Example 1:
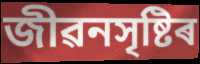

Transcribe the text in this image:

জীৱনসৃষ্টিৰ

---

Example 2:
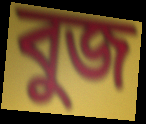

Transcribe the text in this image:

বুজ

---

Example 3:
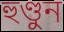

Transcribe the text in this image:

হুণ্ডুন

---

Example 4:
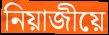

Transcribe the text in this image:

নিয়াজীয়ে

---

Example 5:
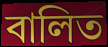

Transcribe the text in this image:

বালিত